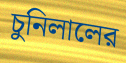
চুনিলালের